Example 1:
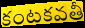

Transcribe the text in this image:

కంటకవతీ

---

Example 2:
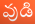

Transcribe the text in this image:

వుడి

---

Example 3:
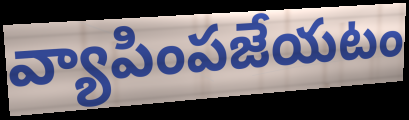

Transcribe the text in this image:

వ్యాపింపజేయటం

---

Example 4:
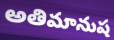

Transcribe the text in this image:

అతిమానుష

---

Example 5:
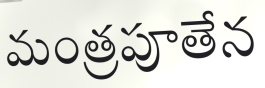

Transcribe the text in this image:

మంత్రపూతేన